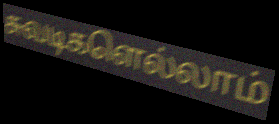
சுவடிகளெல்லாம்